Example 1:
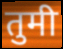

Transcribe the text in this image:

तुमी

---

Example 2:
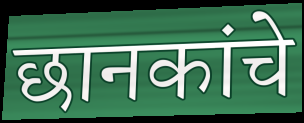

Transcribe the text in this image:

छानकांचे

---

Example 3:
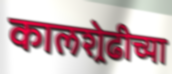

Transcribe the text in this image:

कालश्रेढीच्या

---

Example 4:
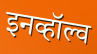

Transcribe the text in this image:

इनव्हॉल्व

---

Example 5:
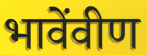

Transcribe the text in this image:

भावेंवीण